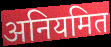
अनियमित